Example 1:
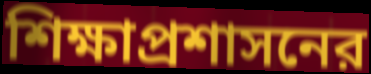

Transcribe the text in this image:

শিক্ষাপ্রশাসনের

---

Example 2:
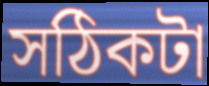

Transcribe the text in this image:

সঠিকটা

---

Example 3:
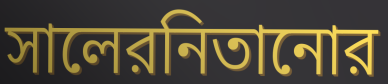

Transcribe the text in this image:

সালেরনিতানোর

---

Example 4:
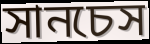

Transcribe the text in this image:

সানচেস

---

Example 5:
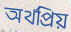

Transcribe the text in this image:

অর্থপ্রিয়